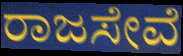
ರಾಜಸೇವೆ